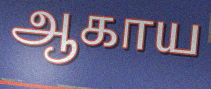
ஆகாய